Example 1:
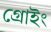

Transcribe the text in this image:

গ্রোইং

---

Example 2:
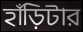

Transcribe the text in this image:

হাঁড়িটার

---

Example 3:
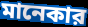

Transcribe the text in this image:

মানেকার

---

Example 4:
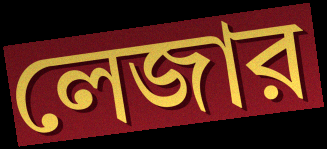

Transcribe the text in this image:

লেজার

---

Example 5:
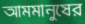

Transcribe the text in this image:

আমমানুষের